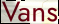
Vans